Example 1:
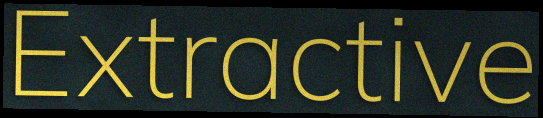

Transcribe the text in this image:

Extractive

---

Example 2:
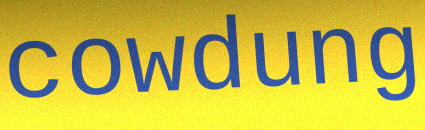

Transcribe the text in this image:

cowdung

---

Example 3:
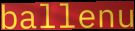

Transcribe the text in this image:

ballenu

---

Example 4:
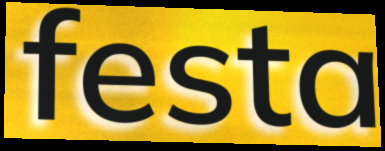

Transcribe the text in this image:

festa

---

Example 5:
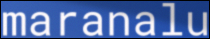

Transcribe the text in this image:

maranalu